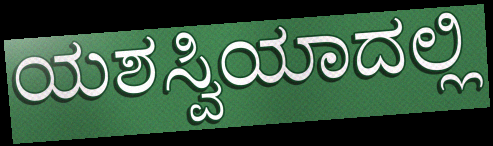
ಯಶಸ್ವಿಯಾದಲ್ಲಿ